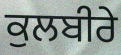
ਕੁਲਬੀਰੇ